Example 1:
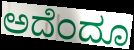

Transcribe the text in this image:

ಅದೆಂದೂ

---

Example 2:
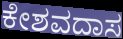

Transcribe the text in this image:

ಕೇಶವದಾಸ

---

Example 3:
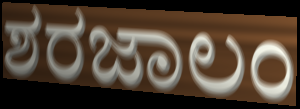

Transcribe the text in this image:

ಶರಜಾಲಂ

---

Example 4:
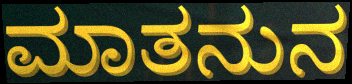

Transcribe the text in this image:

ಮಾತನುನ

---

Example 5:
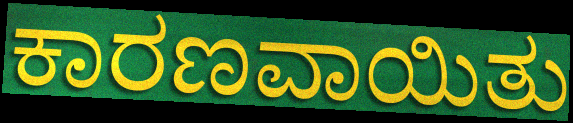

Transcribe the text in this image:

ಕಾರಣವಾಯಿತು